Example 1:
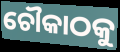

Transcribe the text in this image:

ଚୌକାଠକୁ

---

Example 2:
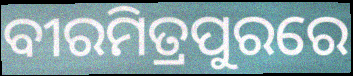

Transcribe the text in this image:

ବୀରମିତ୍ରପୁରରେ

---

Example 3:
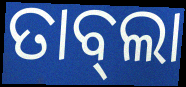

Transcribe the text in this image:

ତାବ୍‌ଲା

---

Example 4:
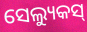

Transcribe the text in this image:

ସେଲ୍ୟୁକସ୍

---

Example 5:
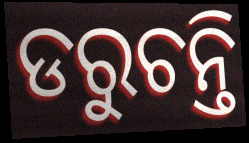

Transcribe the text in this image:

ଡରୁଚନ୍ତି